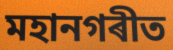
মহানগৰীত